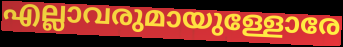
എല്ലാവരുമായുള്ളോരേ